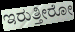
ಇರುತ್ತೀರೋ